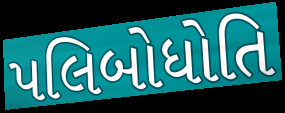
પલિબોધોતિ